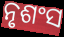
ନୃଶଂସ